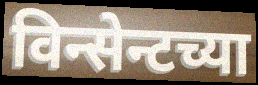
विन्सेन्टच्या